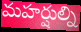
మహర్షుల్ని